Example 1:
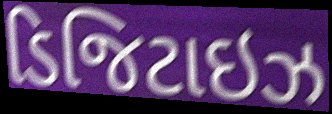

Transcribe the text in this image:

ડિજિટાઇઝ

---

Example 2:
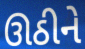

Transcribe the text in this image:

ઊઠીને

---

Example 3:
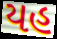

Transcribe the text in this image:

યહ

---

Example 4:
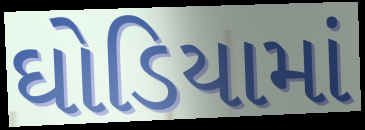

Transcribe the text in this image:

ઘોડિયામાં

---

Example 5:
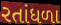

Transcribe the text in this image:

રતાંધળા